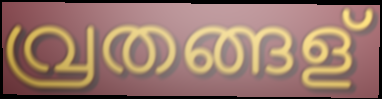
വ്രതങ്ങള്